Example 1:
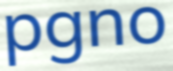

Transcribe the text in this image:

pgno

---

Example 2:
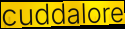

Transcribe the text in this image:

cuddalore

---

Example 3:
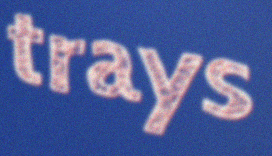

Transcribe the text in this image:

trays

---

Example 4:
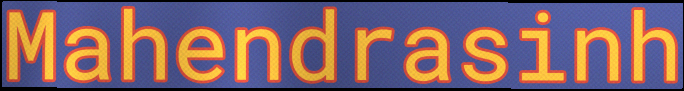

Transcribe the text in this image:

Mahendrasinh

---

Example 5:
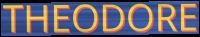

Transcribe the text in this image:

THEODORE